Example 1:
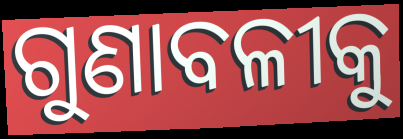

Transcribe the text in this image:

ଗୁଣାବଳୀକୁ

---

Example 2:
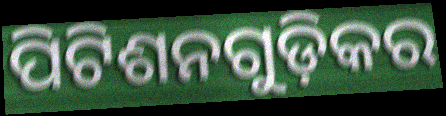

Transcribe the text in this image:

ପିଟିଶନଗୁଡ଼ିକର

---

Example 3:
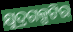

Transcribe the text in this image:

କ୍ଷୁଦ୍ରଗଳ୍ପଟିର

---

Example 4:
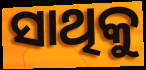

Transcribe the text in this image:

ସାଥିକୁ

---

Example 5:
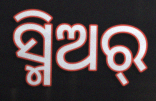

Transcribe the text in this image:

ସ୍ମିଅର୍